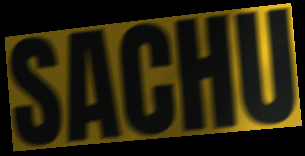
SACHU